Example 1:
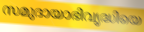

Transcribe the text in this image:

സമുദായാഭിവൃദ്ധിയെ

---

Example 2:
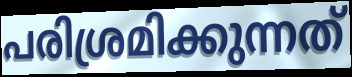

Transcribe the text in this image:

പരിശ്രമിക്കുന്നത്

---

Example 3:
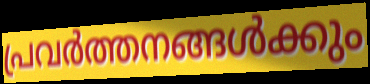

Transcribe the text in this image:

പ്രവർത്തനങ്ങൾക്കും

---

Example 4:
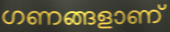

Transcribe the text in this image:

ഗണങ്ങളാണ്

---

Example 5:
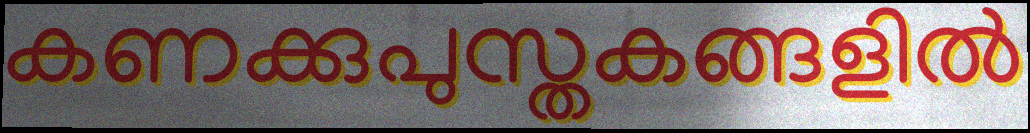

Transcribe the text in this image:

കണക്കുപുസ്തകങ്ങളിൽ